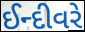
ઈન્દીવરે